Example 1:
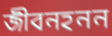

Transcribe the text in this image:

জীবনহনন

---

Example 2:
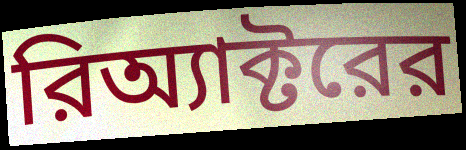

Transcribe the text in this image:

রিঅ্যাক্টরের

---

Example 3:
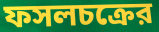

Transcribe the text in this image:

ফসলচক্রের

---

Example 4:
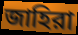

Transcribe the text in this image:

জাহিরা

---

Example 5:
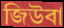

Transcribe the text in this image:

জিউবা